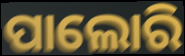
ପାଲୋରି